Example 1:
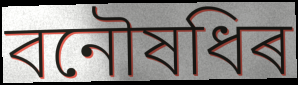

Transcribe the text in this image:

বনৌষধিৰ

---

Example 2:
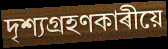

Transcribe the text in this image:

দৃশ্যগ্ৰহণকাৰীয়ে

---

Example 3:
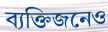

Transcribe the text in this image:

ব্যক্তিজনেও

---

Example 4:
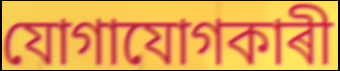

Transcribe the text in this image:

যোগাযোগকাৰী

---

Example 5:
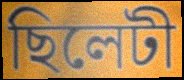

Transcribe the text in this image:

ছিলেটী